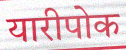
यारीपोक